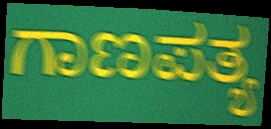
ಗಾಣಪತ್ಯ